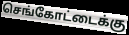
செங்கோட்டைக்கு